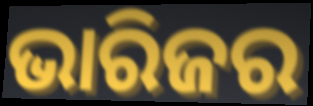
ଭାରିଜର